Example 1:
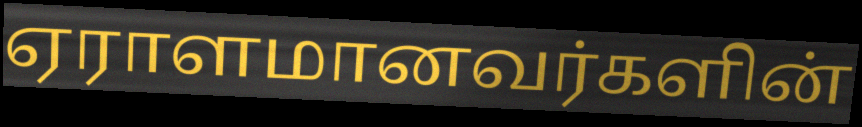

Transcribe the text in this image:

ஏராளமானவர்களின்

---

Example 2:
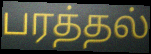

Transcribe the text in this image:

பரத்தல்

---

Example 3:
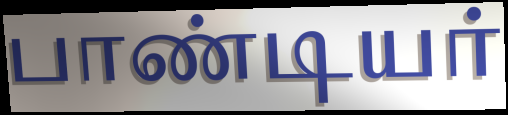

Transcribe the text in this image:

பாண்டியர்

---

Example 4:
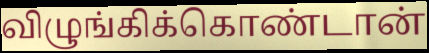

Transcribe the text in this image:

விழுங்கிக்கொண்டான்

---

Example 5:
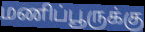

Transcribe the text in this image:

மணிப்பூருக்கு